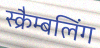
स्क्रैम्बलिंग